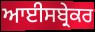
ਆਈਸਬ੍ਰੇਕਰ